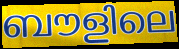
ബൗളിലെ